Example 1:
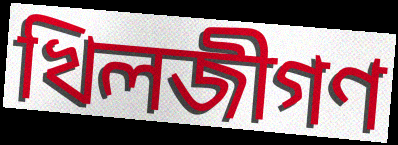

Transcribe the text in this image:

খিলজীগণ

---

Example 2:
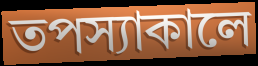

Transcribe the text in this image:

তপস্যাকালে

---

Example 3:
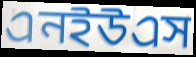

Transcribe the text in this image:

এনইউএস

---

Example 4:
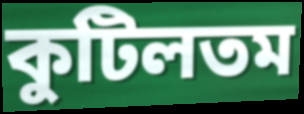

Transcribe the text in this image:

কুটিলতম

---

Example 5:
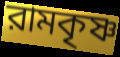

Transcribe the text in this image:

রামকৃষ্ণ